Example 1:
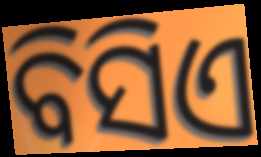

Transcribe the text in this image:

ବିସିଏ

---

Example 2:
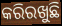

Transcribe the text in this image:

କରିରଖୁଛି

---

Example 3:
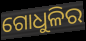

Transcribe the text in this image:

ଗୋଧୁଳିର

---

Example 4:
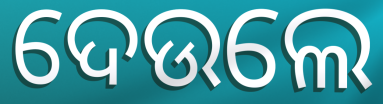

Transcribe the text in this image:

ଦେଉଲେ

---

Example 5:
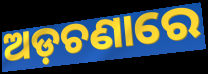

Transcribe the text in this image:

ଅଡ଼ଚଣାରେ